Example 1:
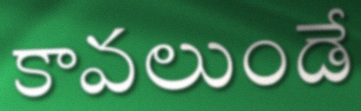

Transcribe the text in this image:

కావలుండే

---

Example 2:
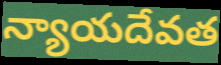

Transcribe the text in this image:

న్యాయదేవత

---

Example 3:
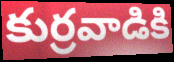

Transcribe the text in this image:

కుర్రవాడికి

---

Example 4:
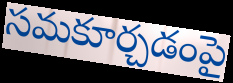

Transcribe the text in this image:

సమకూర్చడంపై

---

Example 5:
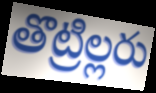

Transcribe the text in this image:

తొట్రిల్లరు